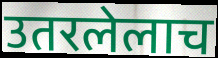
उतरलेलाच